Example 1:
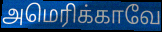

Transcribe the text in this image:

அமெரிக்காவே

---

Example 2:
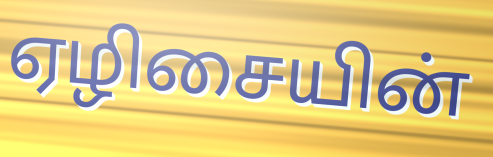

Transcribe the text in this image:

ஏழிசையின்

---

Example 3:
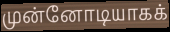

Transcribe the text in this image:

முன்னோடியாகக்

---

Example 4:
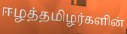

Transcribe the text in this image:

ஈழத்தமிழர்களின்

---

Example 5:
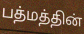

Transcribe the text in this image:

பத்மத்தின்